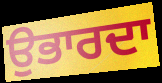
ਉਭਾਰਦਾ